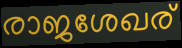
രാജശേഖര്